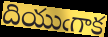
దియుఁగాక